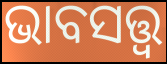
ଭାବସତ୍ତ୍ୱ